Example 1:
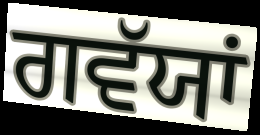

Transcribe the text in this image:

ਗਵੱਯਾਂ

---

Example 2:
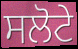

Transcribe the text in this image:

ਸਲੋਟੇ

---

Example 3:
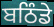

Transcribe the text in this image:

ਬਠਿੰਡੇ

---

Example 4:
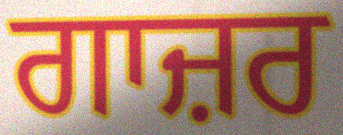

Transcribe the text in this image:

ਗਾਜ਼ਰ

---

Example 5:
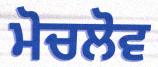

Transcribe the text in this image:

ਮੋਚਲੋਵ